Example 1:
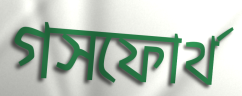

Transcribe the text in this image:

গসফোর্থ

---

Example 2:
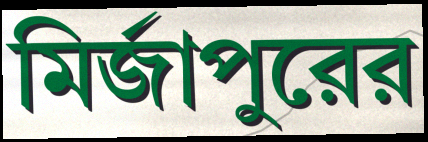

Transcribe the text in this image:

মির্জাপুরের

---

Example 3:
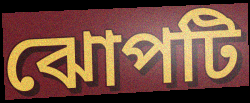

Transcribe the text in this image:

ঝোপটি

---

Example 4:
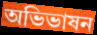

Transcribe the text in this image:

অভিভাষন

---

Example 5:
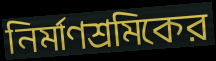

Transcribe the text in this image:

নির্মাণশ্রমিকের